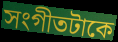
সংগীতটাকে